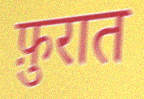
फ़ुरात